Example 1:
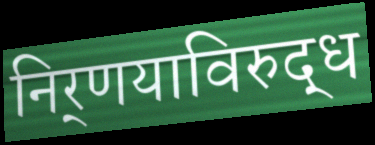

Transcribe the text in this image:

निर्णयाविरुद्ध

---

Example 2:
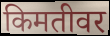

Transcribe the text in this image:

किमतीवर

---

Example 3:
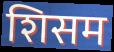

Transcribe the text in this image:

शिसम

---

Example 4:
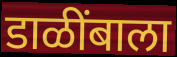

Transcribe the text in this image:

डाळींबाला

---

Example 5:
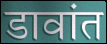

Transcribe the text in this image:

डावांत